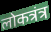
लोकत्रंत्र